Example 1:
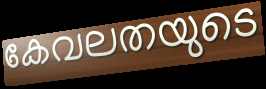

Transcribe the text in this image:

കേവലതയുടെ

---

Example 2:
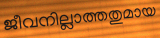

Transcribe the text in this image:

ജീവനില്ലാത്തതുമായ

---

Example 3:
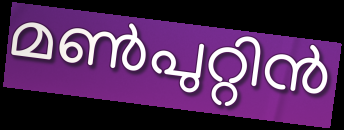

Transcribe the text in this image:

മൺപുറ്റിൻ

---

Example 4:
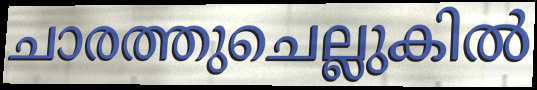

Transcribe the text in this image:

ചാരത്തുചെല്ലുകിൽ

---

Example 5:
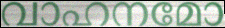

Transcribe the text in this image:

വാഹനമോ